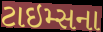
ટાઇમ્સના